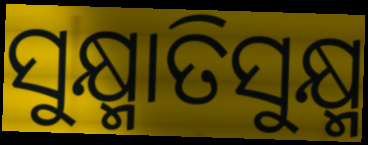
ସୁକ୍ଷ୍ମାତିସୁକ୍ଷ୍ମ